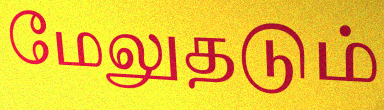
மேலுதடும்